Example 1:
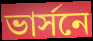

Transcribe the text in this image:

ভার্সনে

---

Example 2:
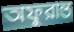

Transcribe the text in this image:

অফুরান্ত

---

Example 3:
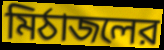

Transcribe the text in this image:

মিঠাজলের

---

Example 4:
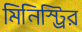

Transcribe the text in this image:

মিনিস্ট্রির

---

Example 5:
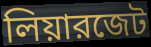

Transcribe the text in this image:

লিয়ারজেট